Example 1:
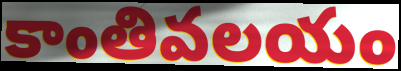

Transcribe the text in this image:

కాంతివలయం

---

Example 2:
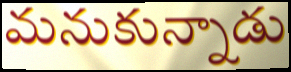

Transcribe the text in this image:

మనుకున్నాడు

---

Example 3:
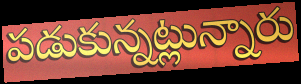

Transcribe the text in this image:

పడుకున్నట్లున్నారు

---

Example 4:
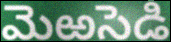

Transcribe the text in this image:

మెఱసెడి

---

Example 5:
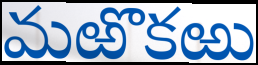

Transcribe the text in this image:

మఱొకఱు